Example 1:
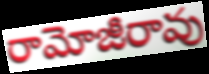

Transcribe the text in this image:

రామోజీరావు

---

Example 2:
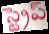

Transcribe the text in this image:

స్ట్రెప్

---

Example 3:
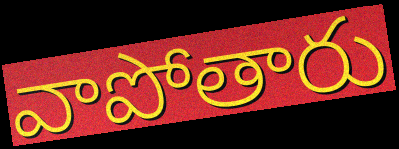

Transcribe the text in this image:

వాపోతారు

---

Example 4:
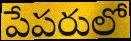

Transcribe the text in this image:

పేపరులో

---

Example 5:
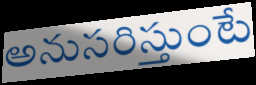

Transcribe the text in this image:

అనుసరిస్తుంటే